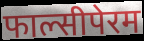
फाल्सीपेरम